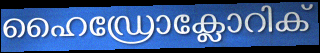
ഹൈഡ്രോക്ലോറിക്